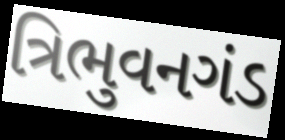
ત્રિભુવનગંડ